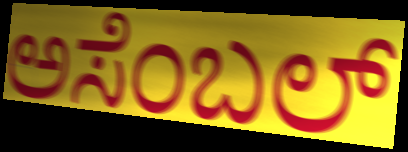
ಅಸೆಂಬಲ್